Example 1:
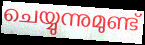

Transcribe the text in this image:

ചെയ്യുന്നുമുണ്ട്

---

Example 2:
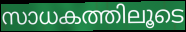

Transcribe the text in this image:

സാധകത്തിലൂടെ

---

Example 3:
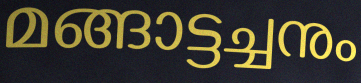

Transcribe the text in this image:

മങ്ങാട്ടച്ചനും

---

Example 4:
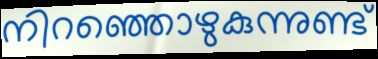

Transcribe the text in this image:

നിറഞ്ഞൊഴുകുന്നുണ്ട്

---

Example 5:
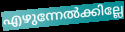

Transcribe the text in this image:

എഴുന്നേൽക്കില്ലേ